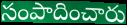
సంపాదించారు